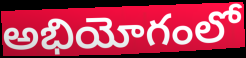
అభియోగంలో